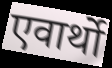
एवार्थो